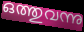
ഒത്തുവന്നു